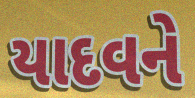
યાદવને